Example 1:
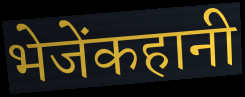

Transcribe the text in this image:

भेजेंकहानी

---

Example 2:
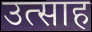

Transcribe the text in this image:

उत्साह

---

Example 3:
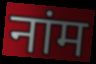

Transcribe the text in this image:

नांम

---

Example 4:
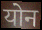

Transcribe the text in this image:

योन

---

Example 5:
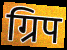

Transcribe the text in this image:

ग्रिप